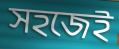
সহজেই